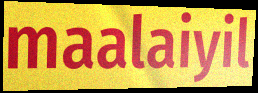
maalaiyil